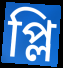
প্লি